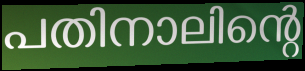
പതിനാലിന്റെ